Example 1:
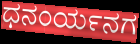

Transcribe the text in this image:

ಧನಂರ್ಯನಗ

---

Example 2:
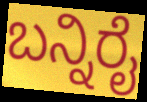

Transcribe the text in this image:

ಬನ್ನಿರೈ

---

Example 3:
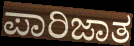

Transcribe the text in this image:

ಪಾರಿಜಾತ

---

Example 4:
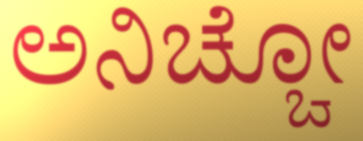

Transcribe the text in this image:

ಅನಿಚ್ಚೋ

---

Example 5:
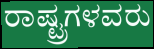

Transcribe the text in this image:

ರಾಷ್ಟ್ರಗಳವರು